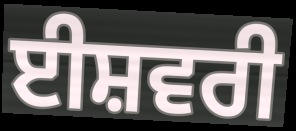
ਈਸ਼ਵਰੀ